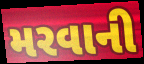
મરવાની